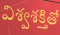
విశ్వశక్తితో